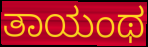
ತಾಯಂಥ